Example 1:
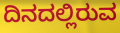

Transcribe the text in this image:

ದಿನದಲ್ಲಿರುವ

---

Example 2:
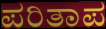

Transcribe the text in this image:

ಪರಿತಾಪ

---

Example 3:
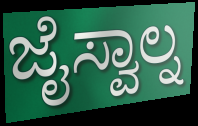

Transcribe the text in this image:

ಜೈಸ್ವಾಲ್ನ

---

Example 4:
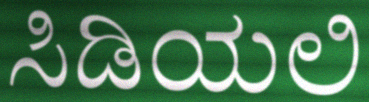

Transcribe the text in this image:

ಸಿಡಿಯಲಿ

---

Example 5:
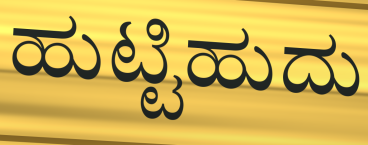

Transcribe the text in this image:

ಹುಟ್ಟಿಹುದು